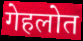
गेहलोत